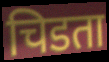
चिडता